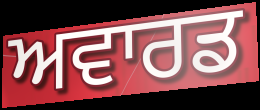
ਅਵਾਰਡ